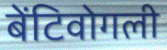
बेंटिवोगली